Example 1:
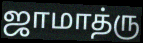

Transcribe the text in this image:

ஜாமாத்ரு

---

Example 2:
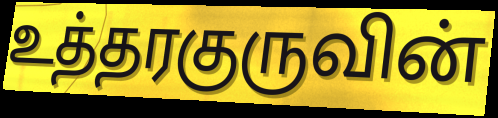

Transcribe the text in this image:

உத்தரகுருவின்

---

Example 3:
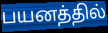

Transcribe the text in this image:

பயனத்தில்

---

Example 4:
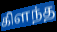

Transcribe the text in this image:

கிளந்த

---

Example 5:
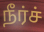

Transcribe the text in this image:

நீர்ச்